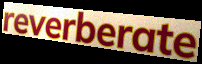
reverberate